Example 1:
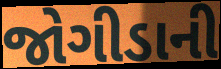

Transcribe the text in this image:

જોગીડાની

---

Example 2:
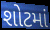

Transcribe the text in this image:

શોટમાં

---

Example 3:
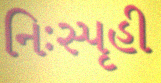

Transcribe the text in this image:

નિઃસ્પૃહી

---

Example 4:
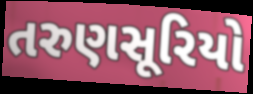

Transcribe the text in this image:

તરુણસૂરિયો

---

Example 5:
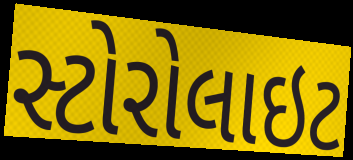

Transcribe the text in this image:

સ્ટોરોલાઇટ